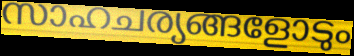
സാഹചര്യങ്ങളോടും